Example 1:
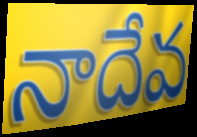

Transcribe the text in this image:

నాదేవ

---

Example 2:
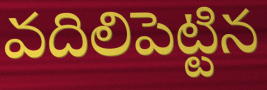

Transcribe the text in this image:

వదిలిపెట్టిన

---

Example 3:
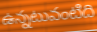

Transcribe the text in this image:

ఉన్నటువంటిది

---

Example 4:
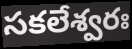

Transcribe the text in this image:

సకలేశ్వరః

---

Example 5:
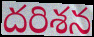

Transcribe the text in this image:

దరిశన